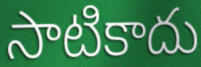
సాటికాదు